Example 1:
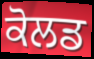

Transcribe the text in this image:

ਕੋਲਡ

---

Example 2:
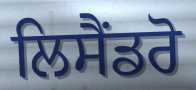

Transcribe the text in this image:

ਲਿਸੈਂਡਰੋ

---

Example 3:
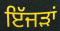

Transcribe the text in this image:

ਇੱਜੜਾਂ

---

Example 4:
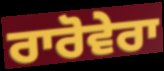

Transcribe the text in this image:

ਰਾਰੋਵੇਰਾ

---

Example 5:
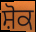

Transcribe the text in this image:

ਸ਼ੋਕ